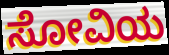
ಸೋವಿಯ